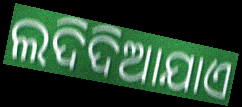
ଲଦିଦିଆଯାଏ